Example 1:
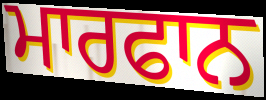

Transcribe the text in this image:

ਮਾਰਫਾਨ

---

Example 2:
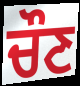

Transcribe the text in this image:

ਚੌਣ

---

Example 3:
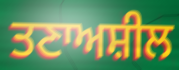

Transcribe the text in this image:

ਤਣਾਅਸ਼ੀਲ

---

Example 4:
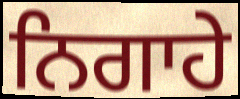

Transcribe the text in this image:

ਨਿਗਾਹੇ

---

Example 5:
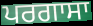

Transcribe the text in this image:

ਪਰਗਾਸਾ